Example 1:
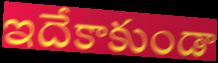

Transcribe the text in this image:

ఇదేకాకుండా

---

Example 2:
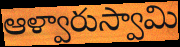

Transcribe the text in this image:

ఆళ్వారుస్వామి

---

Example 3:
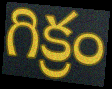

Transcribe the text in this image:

గిక్రం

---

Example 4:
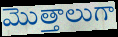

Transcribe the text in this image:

మొత్తాలుగా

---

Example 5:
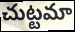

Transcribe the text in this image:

చుట్టమా